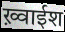
ख़्वाईश